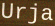
Urja